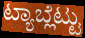
ಟ್ಯಾಬ್ಲೆಟ್ಟು